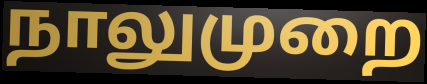
நாலுமுறை